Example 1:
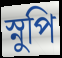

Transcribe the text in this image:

স্নুপি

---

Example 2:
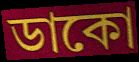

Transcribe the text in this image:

ডাকো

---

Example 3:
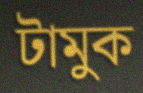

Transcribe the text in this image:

টামুক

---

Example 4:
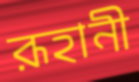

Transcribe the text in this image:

রূহানী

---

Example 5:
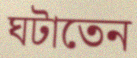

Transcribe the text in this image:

ঘটাতেন